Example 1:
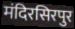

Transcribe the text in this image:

मंदिरसिरपुर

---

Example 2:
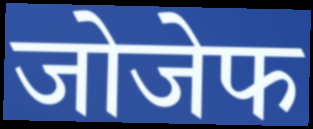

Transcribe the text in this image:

जोजेफ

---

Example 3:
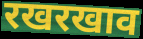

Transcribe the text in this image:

रखरखाव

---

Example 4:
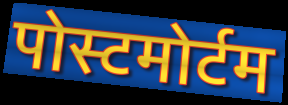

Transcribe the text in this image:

पोस्टमोर्टम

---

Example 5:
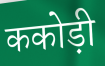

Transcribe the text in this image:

ककोड़ी